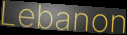
Lebanon